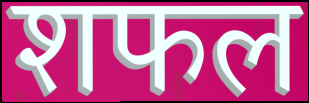
शफल